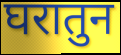
घरातुन